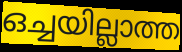
ഒച്ചയില്ലാത്ത